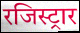
रजिस्ट्रार